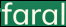
faral